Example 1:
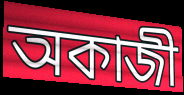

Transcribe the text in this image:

অকাজী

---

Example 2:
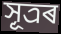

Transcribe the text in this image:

সূত্ৰৰ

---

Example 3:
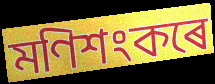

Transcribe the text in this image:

মণিশংকৰে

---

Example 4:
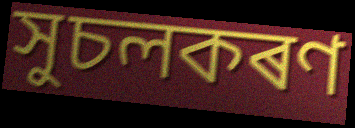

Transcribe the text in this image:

সুচলকৰণ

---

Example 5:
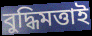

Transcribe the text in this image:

বুদ্ধিমত্তাই